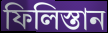
ফিলিস্তান